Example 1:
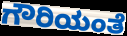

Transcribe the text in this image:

ಗೌರಿಯಂತೆ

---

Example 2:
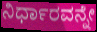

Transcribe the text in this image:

ನಿರ್ಧಾರವನ್ನೇ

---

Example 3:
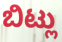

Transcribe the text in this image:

ಬಿಟ್ಲು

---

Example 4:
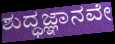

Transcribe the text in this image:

ಶುದ್ಧಜ್ಞಾನವೇ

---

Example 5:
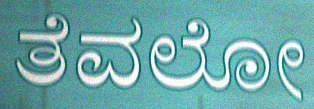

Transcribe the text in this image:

ತೆವಲೋ